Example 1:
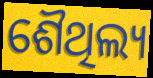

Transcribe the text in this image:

ଶୈଥିଲ୍ୟ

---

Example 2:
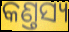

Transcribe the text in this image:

କଣ୍ତସ୍ୟ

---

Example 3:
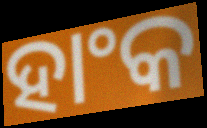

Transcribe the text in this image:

ହାଂକ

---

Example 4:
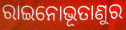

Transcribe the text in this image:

ରାଇନୋଭୂତାଣୁର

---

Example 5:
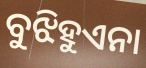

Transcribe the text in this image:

ବୁଝିହୁଏନା